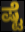
ಷ್ಟೆ